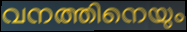
വനത്തിനെയും